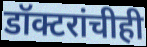
डॉक्टरांचीही